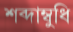
শব্দাম্বুধি